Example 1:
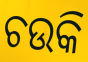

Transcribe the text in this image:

ଚଉକି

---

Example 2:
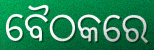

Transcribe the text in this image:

ବୈଠକରେ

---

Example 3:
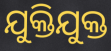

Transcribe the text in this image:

ଯୁକ୍ତିଯୁକ୍ତ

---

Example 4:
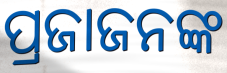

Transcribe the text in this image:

ପ୍ରଜାଜନଙ୍କ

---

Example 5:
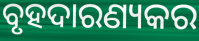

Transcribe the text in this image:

ବୃହଦାରଣ୍ୟକର